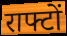
राफ्टों